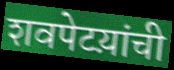
शवपेटय़ांची